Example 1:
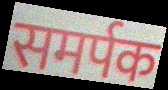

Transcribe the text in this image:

समर्पक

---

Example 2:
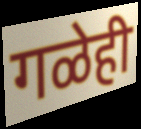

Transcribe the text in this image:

गळेही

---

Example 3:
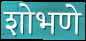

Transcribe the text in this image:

शोभणे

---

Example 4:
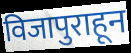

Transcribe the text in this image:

विजापुराहून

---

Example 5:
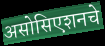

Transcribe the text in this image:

असोसिएशनचे